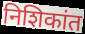
निशिकांत